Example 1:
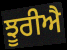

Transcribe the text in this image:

ਝੂਰੀਐ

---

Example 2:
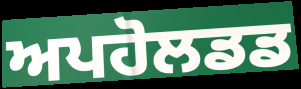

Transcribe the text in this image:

ਅਪਹੋਲਡਡ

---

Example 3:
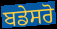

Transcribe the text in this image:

ਬਡੇਸਰੋ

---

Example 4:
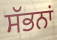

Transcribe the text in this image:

ਸੱਭਨਾਂ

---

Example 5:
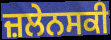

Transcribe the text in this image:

ਜ਼ਲੇਨਸਕੀ